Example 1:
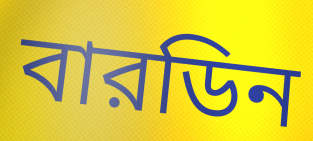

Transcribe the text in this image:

বারডিন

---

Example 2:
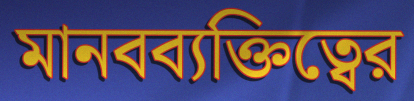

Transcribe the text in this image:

মানবব্যক্তিত্বের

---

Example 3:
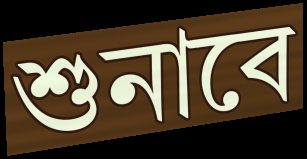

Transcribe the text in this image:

শুনাবে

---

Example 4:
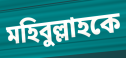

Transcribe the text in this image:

মহিবুল্লাহকে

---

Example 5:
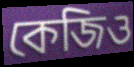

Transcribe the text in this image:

কেজিও